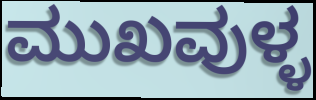
ಮುಖವುಳ್ಳ